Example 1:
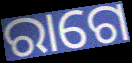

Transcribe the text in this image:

ରାଗେ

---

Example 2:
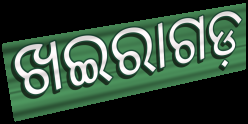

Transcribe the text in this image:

ଖଇରାଗଡ଼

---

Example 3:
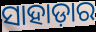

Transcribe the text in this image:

ସାହାଡ଼ାର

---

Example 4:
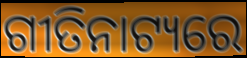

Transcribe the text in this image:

ଗୀତିନାଟ୍ୟରେ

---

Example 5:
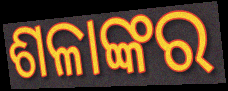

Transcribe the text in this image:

ଶଳାଙ୍କର